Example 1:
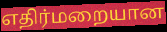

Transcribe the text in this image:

எதிர்மறையான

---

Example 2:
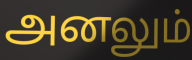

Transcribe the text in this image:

அனலும்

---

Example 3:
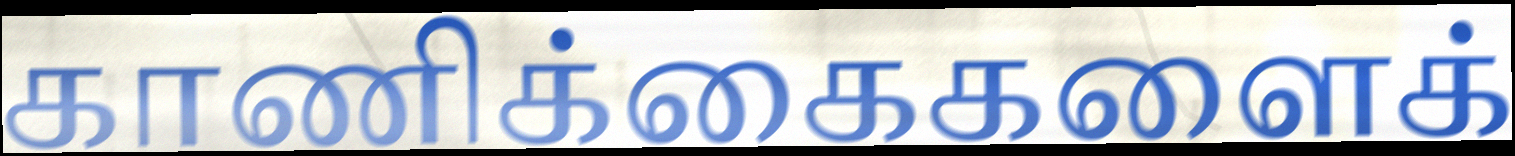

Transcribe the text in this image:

காணிக்கைகளைக்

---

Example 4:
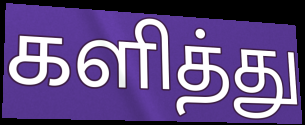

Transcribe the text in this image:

களித்து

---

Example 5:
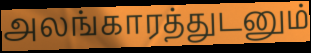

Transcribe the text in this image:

அலங்காரத்துடனும்